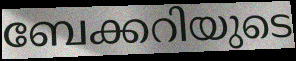
ബേക്കറിയുടെ